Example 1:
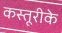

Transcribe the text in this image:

कस्तूरीके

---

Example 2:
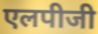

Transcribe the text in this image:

एलपीजी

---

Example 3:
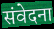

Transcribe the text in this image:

संवेदना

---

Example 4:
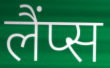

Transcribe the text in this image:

लैंप्स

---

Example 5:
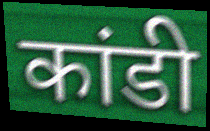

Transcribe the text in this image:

कांडी